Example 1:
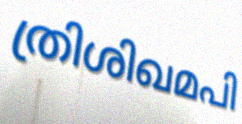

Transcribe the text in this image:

ത്രിശിഖമപി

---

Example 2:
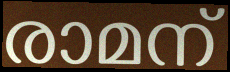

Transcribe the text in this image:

രാമന്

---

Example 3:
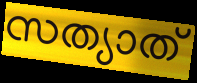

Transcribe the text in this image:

സത്യാത്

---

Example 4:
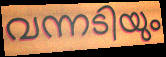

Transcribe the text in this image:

വന്നടിയും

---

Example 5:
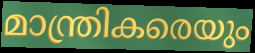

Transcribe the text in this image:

മാന്ത്രികരെയും